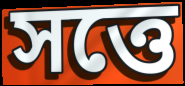
সত্তে